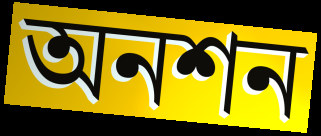
অনশন